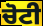
ਚੋਟੀ